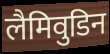
लैमिवुडिन